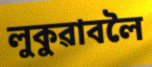
লুকুৱাবলৈ